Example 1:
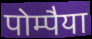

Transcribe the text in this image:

पोम्पैया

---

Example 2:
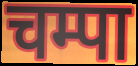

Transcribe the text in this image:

चम्पा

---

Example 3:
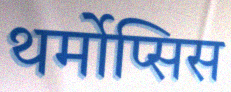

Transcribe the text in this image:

थर्मोप्सिस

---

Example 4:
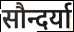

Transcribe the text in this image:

सौन्दर्या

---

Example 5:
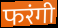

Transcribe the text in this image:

फरंगी